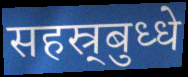
सहस्र्बुध्धे